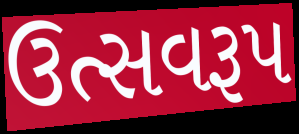
ઉત્સવરૂપ